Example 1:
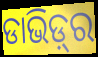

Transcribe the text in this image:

ଡାଭିଡ଼୍‍ର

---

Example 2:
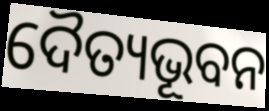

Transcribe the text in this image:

ଦୈତ୍ୟଭୂବନ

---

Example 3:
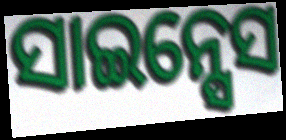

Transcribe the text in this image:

ସାଇନ୍ସେସ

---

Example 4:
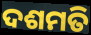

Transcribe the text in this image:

ଦଶମତି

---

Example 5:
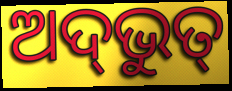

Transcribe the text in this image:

ଅଦ୍‌ଭୁତ୍